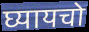
घ्यायचो